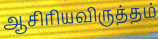
ஆசிரியவிருத்தம்